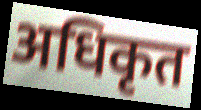
अधिकृत